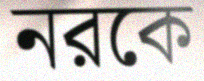
নরকে